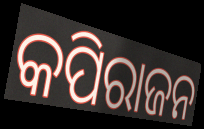
କପିରାଜନ